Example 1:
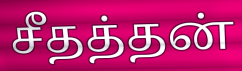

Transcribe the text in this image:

சீதத்தன்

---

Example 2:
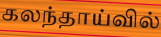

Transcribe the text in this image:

கலந்தாய்வில்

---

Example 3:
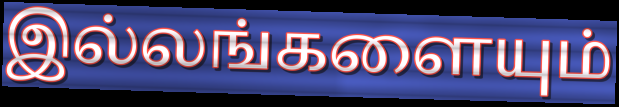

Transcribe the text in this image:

இல்லங்களையும்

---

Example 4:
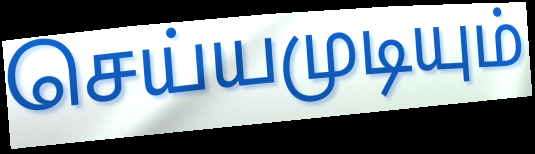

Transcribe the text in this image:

செய்யமுடியும்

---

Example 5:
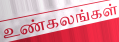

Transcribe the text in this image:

உண்கலங்கள்